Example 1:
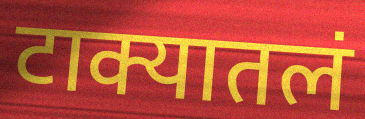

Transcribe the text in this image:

टाक्यातलं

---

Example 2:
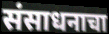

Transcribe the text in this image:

संसाधनाचा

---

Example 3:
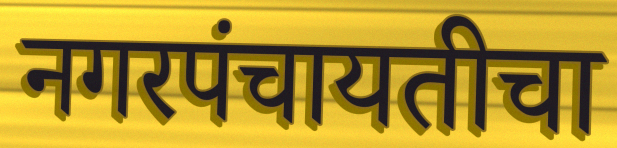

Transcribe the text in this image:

नगरपंचायतीचा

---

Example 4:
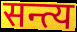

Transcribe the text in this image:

सन्त्य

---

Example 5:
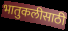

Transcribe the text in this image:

भातुकलीसाठी